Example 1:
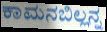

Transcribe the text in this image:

ಕಾಮನಬಿಲ್ಲನ್ನ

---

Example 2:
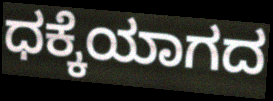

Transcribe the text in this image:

ಧಕ್ಕೆಯಾಗದ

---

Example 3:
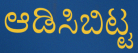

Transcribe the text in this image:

ಆಡಿಸಿಬಿಟ್ಟ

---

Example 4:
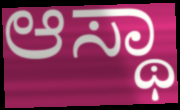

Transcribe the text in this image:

ಆಸ್ಥಾ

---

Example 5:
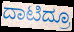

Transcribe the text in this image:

ದಾಟಿದ್ರೂ